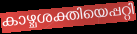
കാഴ്ചശക്തിയെപ്പറ്റി